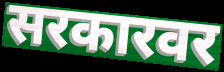
सरकारवर